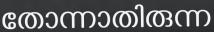
തോന്നാതിരുന്ന